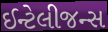
ઈન્ટેલીજન્સ